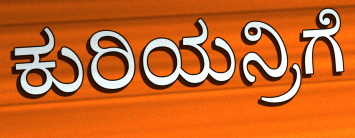
ಕುರಿಯನ್ರಿಗೆ